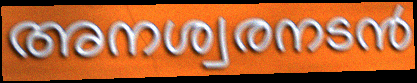
അനശ്വരനടൻ